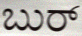
ಬುರ್